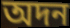
অদন